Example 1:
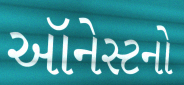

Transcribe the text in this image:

ઑનેસ્ટનો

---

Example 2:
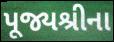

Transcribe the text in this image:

પૂજ્યશ્રીના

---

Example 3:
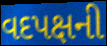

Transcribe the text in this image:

વદપક્ષની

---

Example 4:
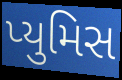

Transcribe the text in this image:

પ્યુમિસ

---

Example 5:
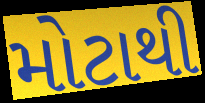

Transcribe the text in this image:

મોટાથી